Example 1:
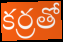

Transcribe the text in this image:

కర్రతో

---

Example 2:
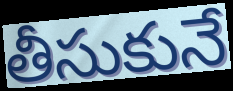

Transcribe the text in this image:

తీసుకునే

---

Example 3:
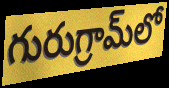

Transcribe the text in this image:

గురుగ్రామ్‌లో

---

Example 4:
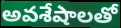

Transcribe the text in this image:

అవశేషాలతో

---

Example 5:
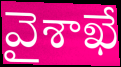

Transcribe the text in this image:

వైశాఖే